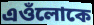
এওঁলোকে